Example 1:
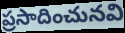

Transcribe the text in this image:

ప్రసాదించునవి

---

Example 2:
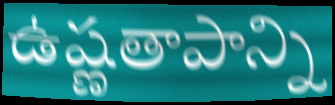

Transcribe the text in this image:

ఉష్ణతాపాన్ని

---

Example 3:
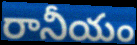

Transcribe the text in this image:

రానీయం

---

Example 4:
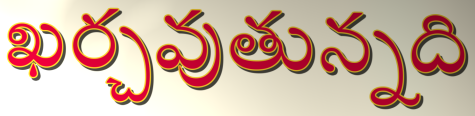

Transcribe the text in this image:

ఖర్చవుతున్నది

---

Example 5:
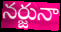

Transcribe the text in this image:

నర్జునా